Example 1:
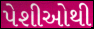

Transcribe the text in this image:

પેશીઓથી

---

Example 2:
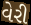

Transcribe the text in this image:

વેરી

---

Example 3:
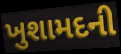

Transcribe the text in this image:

ખુશામદની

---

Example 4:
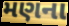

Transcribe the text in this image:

મણના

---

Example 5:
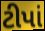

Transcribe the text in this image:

ટીપાં